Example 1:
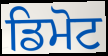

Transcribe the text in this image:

ਡਿਮੋਟ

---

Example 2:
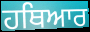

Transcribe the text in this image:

ਹਥਿਆਰ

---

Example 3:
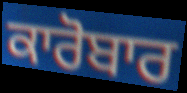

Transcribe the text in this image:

ਕਾਰੋਬਾਰ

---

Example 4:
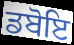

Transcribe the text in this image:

ਡਬੋਇ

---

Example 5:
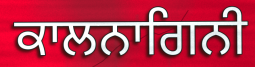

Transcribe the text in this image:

ਕਾਲਨਾਗਿਨੀ